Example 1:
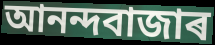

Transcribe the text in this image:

আনন্দবাজাৰ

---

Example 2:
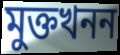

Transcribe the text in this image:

মুক্তখনন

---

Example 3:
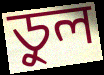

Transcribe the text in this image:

ডুল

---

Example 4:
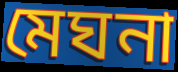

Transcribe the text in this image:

মেঘনা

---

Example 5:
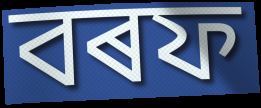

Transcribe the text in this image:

বৰফ